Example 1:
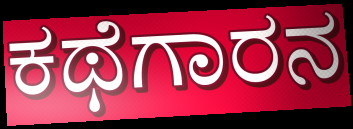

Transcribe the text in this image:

ಕಥೆಗಾರನ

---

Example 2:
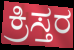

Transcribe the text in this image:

ಕ್ರಿಸ್ತರ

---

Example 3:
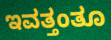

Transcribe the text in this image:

ಇವತ್ತಂತೂ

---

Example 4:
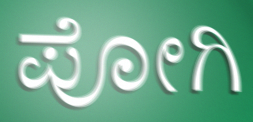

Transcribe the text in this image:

ಪೋಗಿ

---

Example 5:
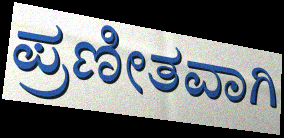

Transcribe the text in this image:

ಪ್ರಣೀತವಾಗಿ